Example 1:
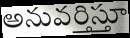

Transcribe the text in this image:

అనువర్తిస్తూ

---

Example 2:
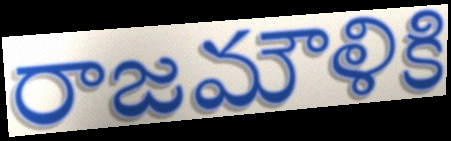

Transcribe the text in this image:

రాజమౌళికి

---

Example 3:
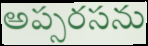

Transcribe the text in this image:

అప్సరసను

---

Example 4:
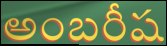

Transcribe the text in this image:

అంబరీష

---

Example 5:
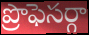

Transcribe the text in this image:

ప్రొఫెసర్గా